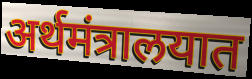
अर्थमंत्रालयात